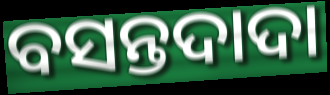
ବସନ୍ତଦାଦା